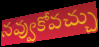
నవ్వుకోవచ్చు